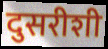
दुसरीशी